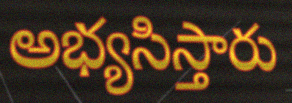
అభ్యసిస్తారు